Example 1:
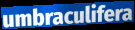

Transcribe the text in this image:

umbraculifera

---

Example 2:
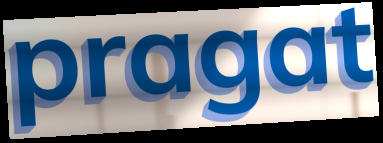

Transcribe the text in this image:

pragat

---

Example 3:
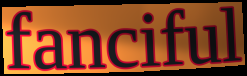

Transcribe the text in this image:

fanciful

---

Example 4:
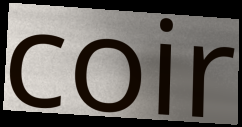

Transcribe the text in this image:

coir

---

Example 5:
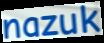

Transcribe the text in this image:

nazuk